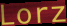
Lorz